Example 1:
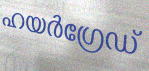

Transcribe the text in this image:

ഹയർഗ്രേഡ്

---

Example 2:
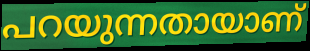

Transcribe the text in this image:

പറയുന്നതായാണ്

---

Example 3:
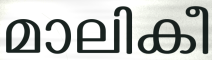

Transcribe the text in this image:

മാലികീ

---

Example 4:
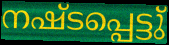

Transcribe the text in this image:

നഷ്ടപ്പെട്ടു്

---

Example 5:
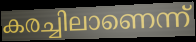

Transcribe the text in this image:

കരച്ചിലാണെന്ന്